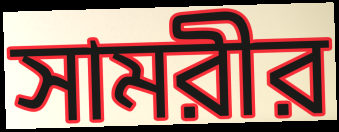
সামরীর